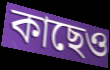
কাছেও